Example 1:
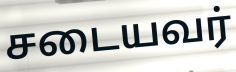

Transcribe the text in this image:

சடையவர்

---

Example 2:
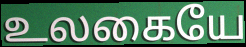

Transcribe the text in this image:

உலகையே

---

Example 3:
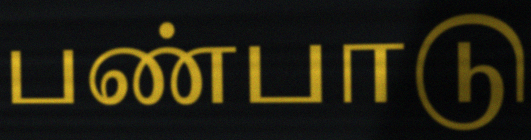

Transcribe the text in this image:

பண்பாடு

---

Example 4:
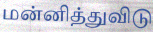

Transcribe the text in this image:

மன்னித்துவிடு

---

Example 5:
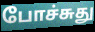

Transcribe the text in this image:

போச்சுது